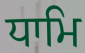
ਧਾਮਿ